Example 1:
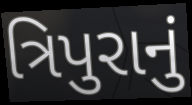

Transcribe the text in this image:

ત્રિપુરાનું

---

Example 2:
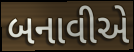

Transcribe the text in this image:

બનાવીએ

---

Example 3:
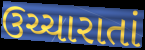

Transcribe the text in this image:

ઉચ્ચારાતાં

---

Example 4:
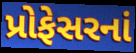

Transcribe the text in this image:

પ્રોફેસરનાં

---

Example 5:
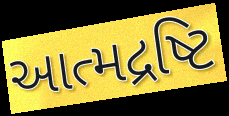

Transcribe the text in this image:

આત્મદ્રષ્ટિ